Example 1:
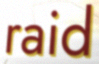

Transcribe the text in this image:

raid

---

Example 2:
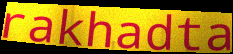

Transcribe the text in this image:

rakhadta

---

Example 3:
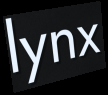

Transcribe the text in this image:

lynx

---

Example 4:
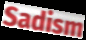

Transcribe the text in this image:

Sadism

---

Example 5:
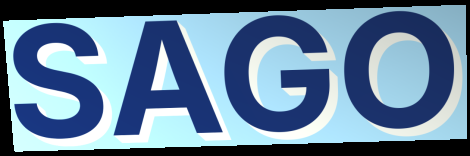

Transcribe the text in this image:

SAGO